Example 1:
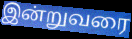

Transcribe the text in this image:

இன்றுவரை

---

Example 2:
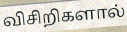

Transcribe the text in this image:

விசிறிகளால்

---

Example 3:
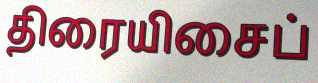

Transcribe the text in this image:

திரையிசைப்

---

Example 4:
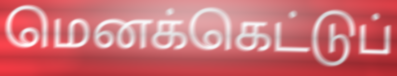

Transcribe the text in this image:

மெனக்கெட்டுப்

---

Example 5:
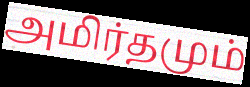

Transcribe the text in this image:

அமிர்தமும்